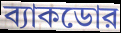
ব্যাকডোর